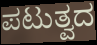
ಪಟುತ್ವದ